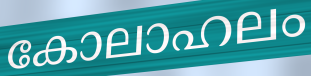
കോലാഹലം